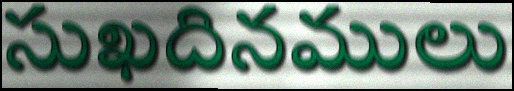
సుఖదినములు